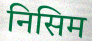
निसिम